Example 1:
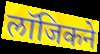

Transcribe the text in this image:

लॉजिकने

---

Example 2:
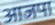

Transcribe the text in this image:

आजपा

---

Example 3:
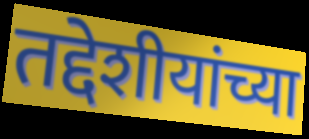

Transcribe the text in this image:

तद्देशीयांच्या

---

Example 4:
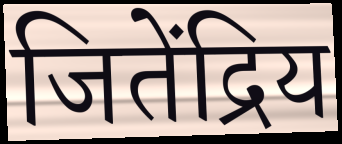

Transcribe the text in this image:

जितेंद्रिय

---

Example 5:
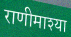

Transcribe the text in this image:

राणीमाश्या